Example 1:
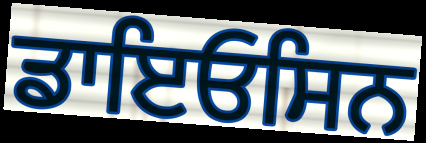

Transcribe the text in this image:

ਡਾਇਓਸਿਨ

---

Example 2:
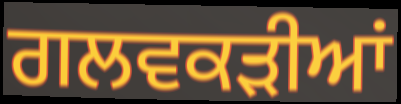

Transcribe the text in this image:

ਗਲਵਕੜੀਆਂ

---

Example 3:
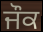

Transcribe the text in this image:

ਜੌਕ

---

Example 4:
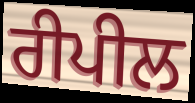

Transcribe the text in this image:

ਰੀਪੀਲ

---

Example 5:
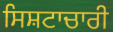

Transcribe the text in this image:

ਸਿਸ਼ਟਾਚਾਰੀ